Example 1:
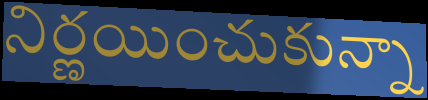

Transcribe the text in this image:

నిర్ణయించుకున్నా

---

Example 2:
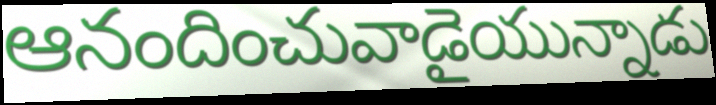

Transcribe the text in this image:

ఆనందించువాడైయున్నాడు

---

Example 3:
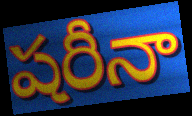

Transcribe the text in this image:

షరీనా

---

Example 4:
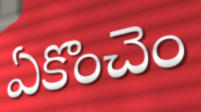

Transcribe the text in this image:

ఏకొంచెం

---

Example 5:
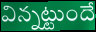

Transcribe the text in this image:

విన్నట్టుందే